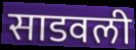
साडवली